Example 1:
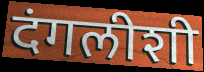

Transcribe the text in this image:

दंगलीशी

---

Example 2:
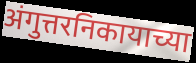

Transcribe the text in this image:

अंगुत्तरनिकायाच्या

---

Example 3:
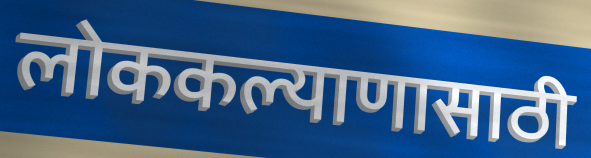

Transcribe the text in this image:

लोककल्याणासाठी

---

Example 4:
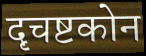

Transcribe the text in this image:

दृचष्टकोन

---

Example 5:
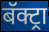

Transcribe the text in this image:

बॅक्ट्रा